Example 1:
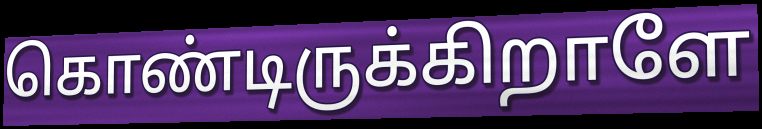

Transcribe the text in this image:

கொண்டிருக்கிறாளே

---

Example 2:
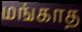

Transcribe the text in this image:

மங்காத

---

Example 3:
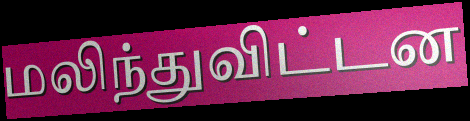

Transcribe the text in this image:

மலிந்துவிட்டன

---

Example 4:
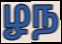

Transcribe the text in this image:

ழந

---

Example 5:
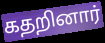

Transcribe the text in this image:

கதறினார்